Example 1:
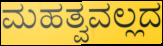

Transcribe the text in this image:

ಮಹತ್ವವಲ್ಲದ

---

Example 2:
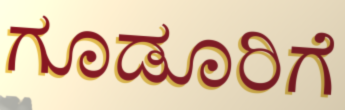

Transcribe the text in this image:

ಗೂಡೂರಿಗೆ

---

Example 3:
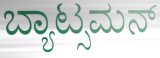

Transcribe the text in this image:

ಬ್ಯಾಟ್ಸಮನ್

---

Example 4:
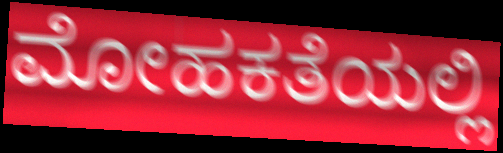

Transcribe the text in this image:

ಮೋಹಕತೆಯಲ್ಲಿ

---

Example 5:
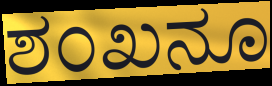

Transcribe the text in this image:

ಶಂಖನೂ